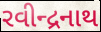
રવીન્દ્રનાથ